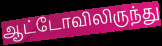
ஆட்டோவிலிருந்து